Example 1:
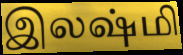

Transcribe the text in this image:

இலஷ்மி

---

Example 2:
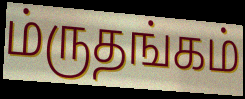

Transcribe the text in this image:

ம்ருதங்கம்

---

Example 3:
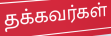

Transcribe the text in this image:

தக்கவர்கள்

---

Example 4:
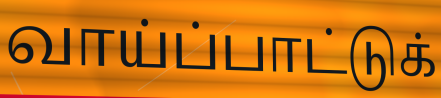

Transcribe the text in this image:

வாய்ப்பாட்டுக்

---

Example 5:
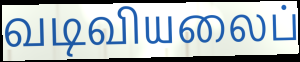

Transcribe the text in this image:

வடிவியலைப்